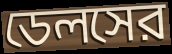
ডেলসের